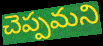
చెప్పమని